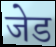
जेड